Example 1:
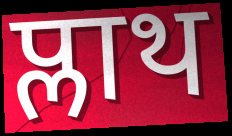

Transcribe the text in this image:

प्लाथ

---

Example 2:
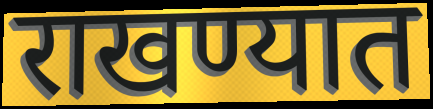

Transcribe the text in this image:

राखण्यात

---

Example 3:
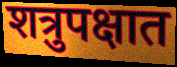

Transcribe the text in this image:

शत्रुपक्षात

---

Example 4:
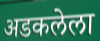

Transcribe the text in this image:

अडकलेला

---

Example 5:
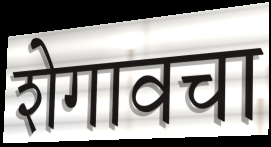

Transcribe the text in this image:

शेगावचा